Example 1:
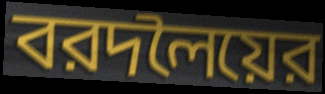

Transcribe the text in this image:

বরদলৈয়ের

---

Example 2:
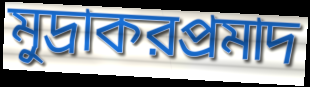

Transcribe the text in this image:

মুদ্রাকরপ্রমাদ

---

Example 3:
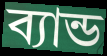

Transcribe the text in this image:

ব্যান্ড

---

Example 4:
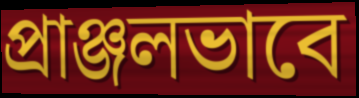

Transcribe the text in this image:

প্রাঞ্জলভাবে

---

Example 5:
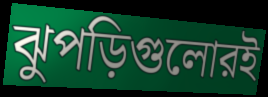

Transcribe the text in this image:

ঝুপড়িগুলোরই